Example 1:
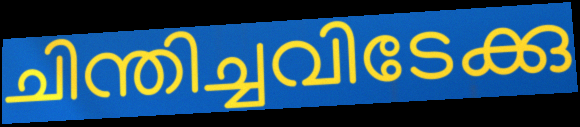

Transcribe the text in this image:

ചിന്തിച്ചവിടേക്കു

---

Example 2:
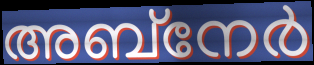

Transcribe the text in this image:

അബ്നേർ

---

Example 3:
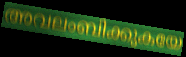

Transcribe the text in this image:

അവലംബിക്കുകയേ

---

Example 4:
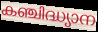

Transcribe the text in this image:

കഞ്ചിദ്ധ്യാന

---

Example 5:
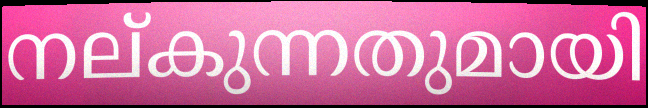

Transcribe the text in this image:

നല്കുന്നതുമായി